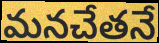
మనచేతనే